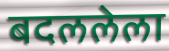
बदललेला